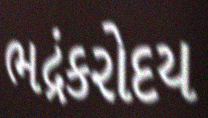
ભદ્રંકરોદય